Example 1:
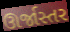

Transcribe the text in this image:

ઊર્જાસ્તર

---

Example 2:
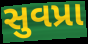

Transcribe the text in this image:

સુવપ્રા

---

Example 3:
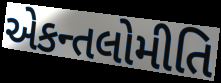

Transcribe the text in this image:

એકન્તલોમીતિ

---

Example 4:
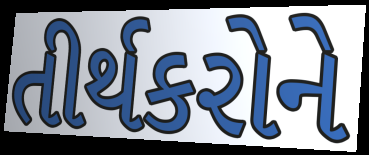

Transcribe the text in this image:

તીર્થકરોને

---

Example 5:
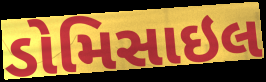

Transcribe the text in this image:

ડોમિસાઇલ